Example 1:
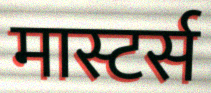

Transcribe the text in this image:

मास्टर्स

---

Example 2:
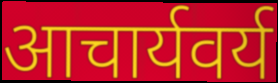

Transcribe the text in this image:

आचार्यवर्य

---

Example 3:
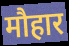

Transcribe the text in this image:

मौहार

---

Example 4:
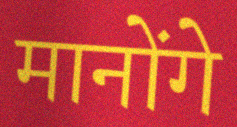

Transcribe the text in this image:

मानोंगे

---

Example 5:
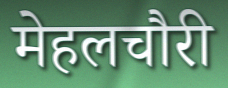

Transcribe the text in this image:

मेहलचौरी